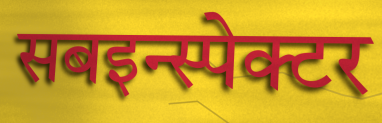
सबइन्स्पेक्टर